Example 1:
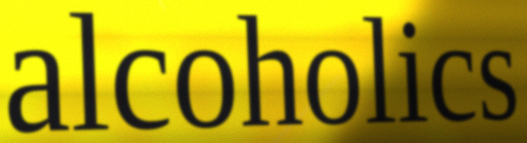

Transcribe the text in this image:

alcoholics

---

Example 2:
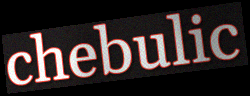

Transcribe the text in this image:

chebulic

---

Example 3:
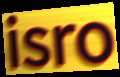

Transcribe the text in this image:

isro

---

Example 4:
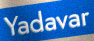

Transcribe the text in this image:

Yadavar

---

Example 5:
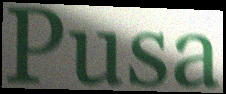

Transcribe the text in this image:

Pusa